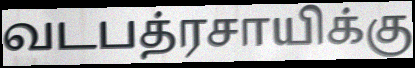
வடபத்ரசாயிக்கு